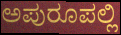
ಅಪುರೂಪಲ್ಲಿ